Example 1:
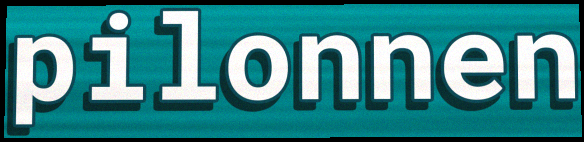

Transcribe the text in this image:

pilonnen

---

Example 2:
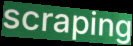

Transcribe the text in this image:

scraping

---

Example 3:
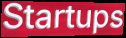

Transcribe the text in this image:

Startups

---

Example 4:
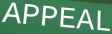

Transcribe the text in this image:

APPEAL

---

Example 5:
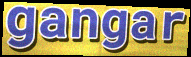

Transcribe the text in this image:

gangar